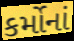
કર્મોનાં